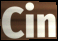
Cin